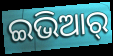
ଇଭିଆର୍